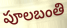
పూలబంతి